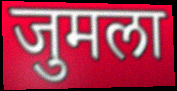
जुमला